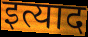
इत्याद